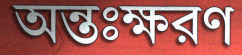
অন্তঃক্ষরণ